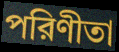
পরিণীতা